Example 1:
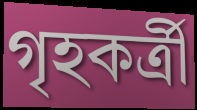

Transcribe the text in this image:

গৃহকর্ত্রী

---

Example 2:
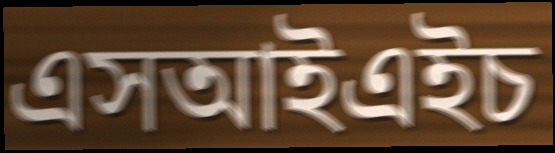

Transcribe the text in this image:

এসআইএইচ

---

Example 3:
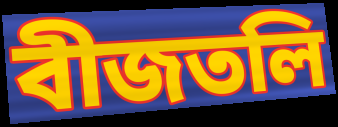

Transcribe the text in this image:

বীজতলি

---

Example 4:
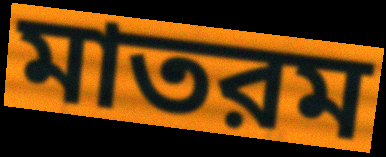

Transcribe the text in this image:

মাতরম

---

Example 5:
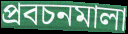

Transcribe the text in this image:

প্রবচনমালা